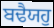
ਬਢੈਯਹੁ